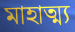
মাহাত্ম্য